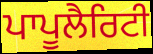
ਪਾਪੂਲੈਰਿਟੀ